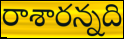
రాశారన్నది